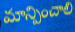
మాన్పించాలి